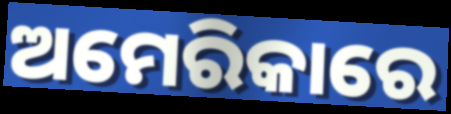
ଅମେରିକାରେ